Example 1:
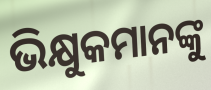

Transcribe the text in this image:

ଭିକ୍ଷୁକମାନଙ୍କୁ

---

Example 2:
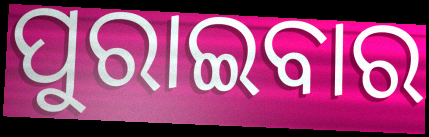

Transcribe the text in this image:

ପୁରାଇବାର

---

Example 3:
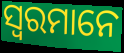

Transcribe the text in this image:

ସ୍ୱରମାନେ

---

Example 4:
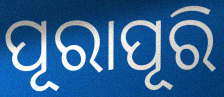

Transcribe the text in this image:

ପୂରାପୂରି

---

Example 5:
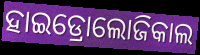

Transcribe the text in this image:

ହାଇଡ୍ରୋଲୋଜିକାଲ